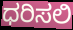
ಧರಿಸಲಿ